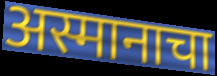
अस्मानाचा